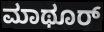
ಮಾಥೂರ್